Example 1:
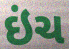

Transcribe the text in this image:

ઇંચ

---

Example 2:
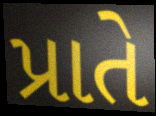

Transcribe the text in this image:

પ્રાતે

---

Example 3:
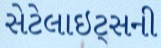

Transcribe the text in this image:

સેટેલાઇટ્સની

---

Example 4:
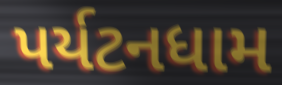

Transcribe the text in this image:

પર્યટનધામ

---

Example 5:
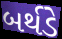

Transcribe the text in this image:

બર્થડે